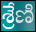
శ్రేణి